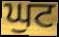
ਘੁਟ